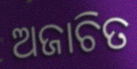
ଅଜାଚିତ